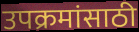
उपक्रमांसाठी